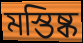
মস্তিষ্ক